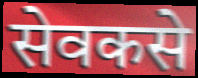
सेवकसे